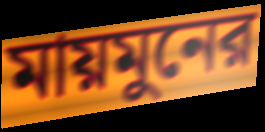
মায়মুনের